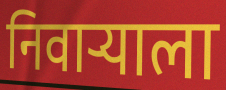
निवाऱ्याला